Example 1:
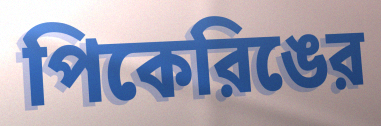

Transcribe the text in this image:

পিকেরিঙের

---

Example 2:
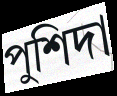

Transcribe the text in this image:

পুশিদা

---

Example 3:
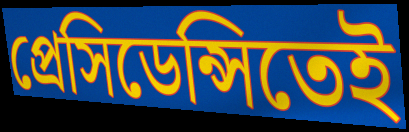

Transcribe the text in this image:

প্রেসিডেন্সিতেই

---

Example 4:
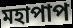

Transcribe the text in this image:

মহাপাপ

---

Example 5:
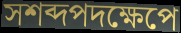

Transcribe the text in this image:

সশব্দপদক্ষেপে